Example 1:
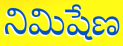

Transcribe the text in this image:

నిమిషేణ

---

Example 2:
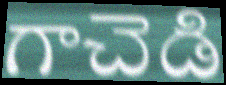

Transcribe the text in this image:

గాచెడి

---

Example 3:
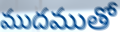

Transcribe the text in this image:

ముదముతో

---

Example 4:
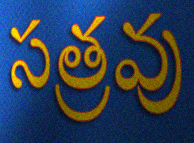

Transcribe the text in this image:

సత్రవు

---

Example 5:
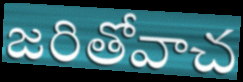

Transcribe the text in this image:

జరితోవాచ